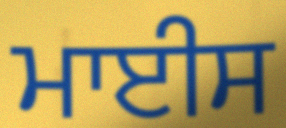
ਮਾਈਸ